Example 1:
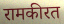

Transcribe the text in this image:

रामकीरत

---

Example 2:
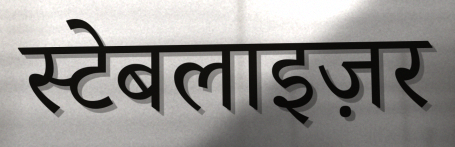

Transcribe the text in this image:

स्टेबलाइज़र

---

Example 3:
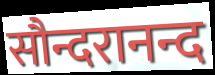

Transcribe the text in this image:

सौन्दरानन्द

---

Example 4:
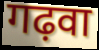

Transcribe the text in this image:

गढ़वा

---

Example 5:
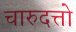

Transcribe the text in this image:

चारुदत्तो